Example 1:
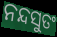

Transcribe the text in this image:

ନନ୍ଦସୁତଂ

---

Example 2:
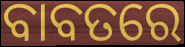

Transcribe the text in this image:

ବାବତରେ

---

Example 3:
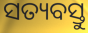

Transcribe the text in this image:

ସତ୍ୟବସ୍ତୁ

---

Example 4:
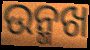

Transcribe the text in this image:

ଉନ୍ମଖ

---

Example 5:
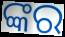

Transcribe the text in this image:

ଙ୍କର